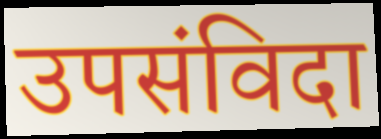
उपसंविदा